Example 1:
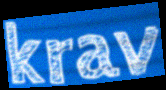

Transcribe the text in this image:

krav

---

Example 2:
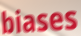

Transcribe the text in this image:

biases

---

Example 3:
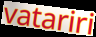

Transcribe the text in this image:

vatariri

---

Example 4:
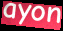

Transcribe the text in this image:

ayon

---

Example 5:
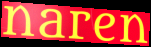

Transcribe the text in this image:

naren